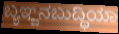
ಬ್ಯಞ್ಜನಬುದ್ಧಿಯಾ